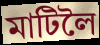
মাটিলৈ